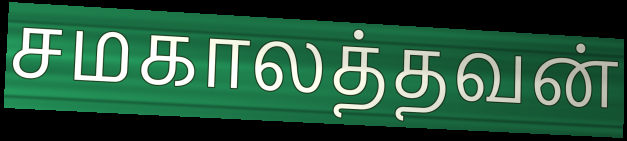
சமகாலத்தவன்